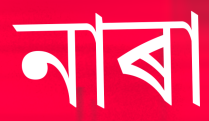
নাৰা